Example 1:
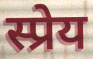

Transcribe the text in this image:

स्प्रेय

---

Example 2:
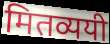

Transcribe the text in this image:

मितव्ययी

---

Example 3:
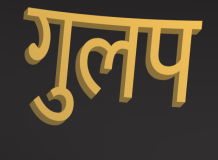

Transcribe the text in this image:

गुलप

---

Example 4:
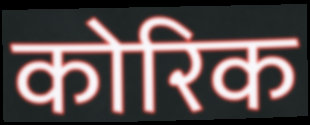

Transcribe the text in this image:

कोरिक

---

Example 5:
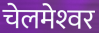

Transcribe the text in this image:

चेलमेश्‍वर